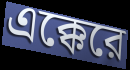
এক্কেরে